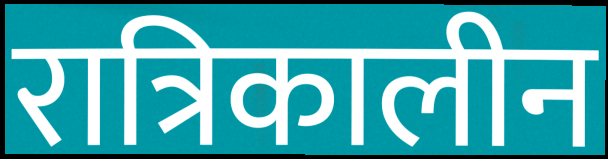
रात्रिकालीन